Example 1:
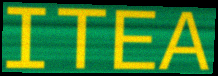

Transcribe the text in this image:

ITEA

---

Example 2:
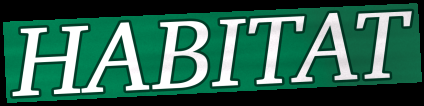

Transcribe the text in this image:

HABITAT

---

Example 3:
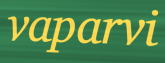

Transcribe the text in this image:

vaparvi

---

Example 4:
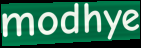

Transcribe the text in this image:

modhye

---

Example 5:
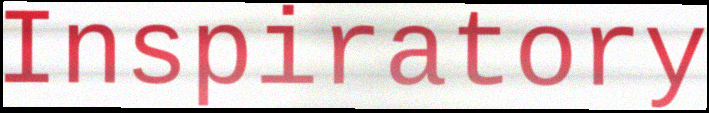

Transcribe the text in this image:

Inspiratory